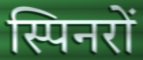
स्पिनरों